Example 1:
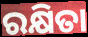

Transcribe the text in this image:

ରକ୍ଷିତା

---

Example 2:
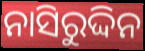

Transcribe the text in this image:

ନାସିରୁଦ୍ଦିନ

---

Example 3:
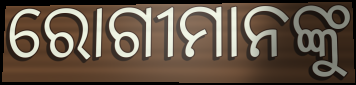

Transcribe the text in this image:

ରୋଗୀମାନଙ୍କୁ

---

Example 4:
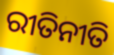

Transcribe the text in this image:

ରୀତିନୀତି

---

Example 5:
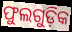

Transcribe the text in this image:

ଫୁଲଗୁଡ଼ିକ